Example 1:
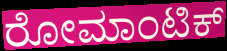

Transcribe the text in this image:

ರೋಮಾಂಟಿಕ್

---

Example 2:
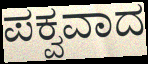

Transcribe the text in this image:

ಪಕ್ವವಾದ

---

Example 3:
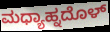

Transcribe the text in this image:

ಮಧ್ಯಾಹ್ನದೊಳ್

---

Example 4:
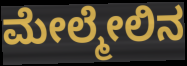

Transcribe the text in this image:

ಮೇಲ್ಮೇಲಿನ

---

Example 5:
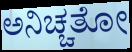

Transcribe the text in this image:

ಅನಿಚ್ಚತೋ